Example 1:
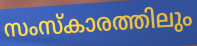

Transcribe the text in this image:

സംസ്കാരത്തിലും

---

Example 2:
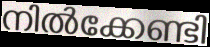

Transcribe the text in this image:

നിൽക്കേണ്ടി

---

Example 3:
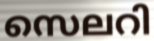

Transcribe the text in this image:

സെലറി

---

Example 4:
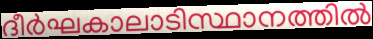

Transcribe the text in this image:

ദീർഘകാലാടിസ്ഥാനത്തിൽ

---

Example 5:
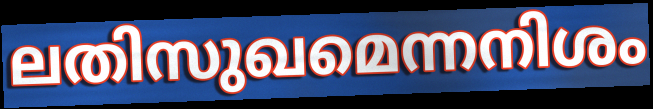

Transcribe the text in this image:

ലതിസുഖമെന്നനിശം